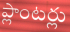
ప్లాంటర్లు